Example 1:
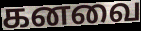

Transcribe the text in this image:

கனவை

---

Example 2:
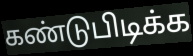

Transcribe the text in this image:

கண்டுபிடிக்க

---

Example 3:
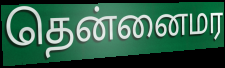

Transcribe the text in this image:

தென்னைமர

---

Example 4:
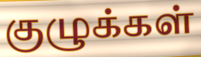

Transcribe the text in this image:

குழுக்கள்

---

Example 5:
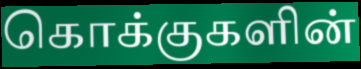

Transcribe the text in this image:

கொக்குகளின்